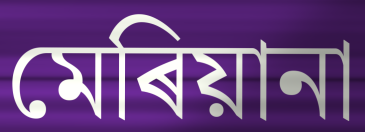
মেৰিয়ানা